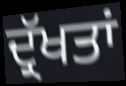
ਦ੍ਰੱਖਤਾਂ